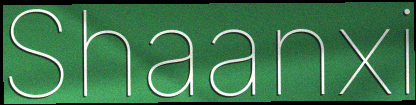
Shaanxi